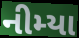
નીમ્યા